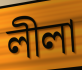
লীলা